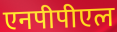
एनपीपीएल